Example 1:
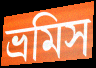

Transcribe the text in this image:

ভ্রমিস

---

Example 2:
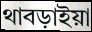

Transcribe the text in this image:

থাবড়াইয়া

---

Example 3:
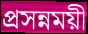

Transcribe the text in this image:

প্রসন্নময়ী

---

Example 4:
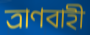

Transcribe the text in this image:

ত্রাণবাহী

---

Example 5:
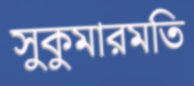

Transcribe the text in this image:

সুকুমারমতি